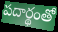
పదార్థంతో